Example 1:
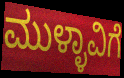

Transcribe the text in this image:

ಮುಳ್ಳಾವಿಗೆ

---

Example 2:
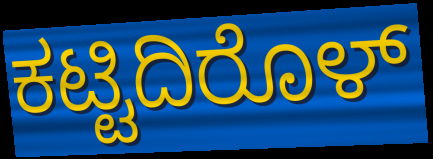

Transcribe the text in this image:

ಕಟ್ಟಿದಿರೊಳ್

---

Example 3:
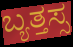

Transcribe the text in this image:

ಬ್ಯತ್ತಸ್ಸ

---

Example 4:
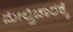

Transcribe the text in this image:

ಮೇಲ್ವಿಚಾರಕ್ಕೆ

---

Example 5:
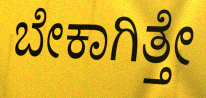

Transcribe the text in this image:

ಬೇಕಾಗಿತ್ತೇ